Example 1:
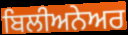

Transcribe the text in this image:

ਬਿਲੀਅਨੇਅਰ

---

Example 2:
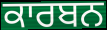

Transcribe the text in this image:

ਕਾਰਬਨ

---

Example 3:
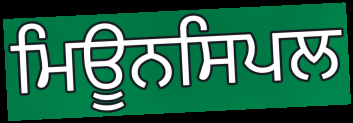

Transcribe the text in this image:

ਮਿਊਨਸਿਪਲ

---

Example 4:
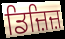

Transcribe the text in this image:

ਡਿਜ਼ਿਜ਼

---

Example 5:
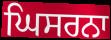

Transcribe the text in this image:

ਘਿਸਰਨਾ